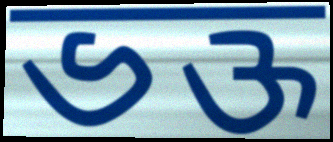
ভক্ত